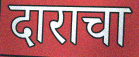
दाराचा